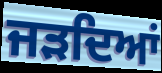
ਜੜਦਿਆਂ